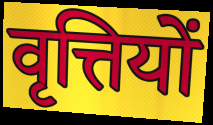
वृत्तियों